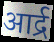
आर्द्र